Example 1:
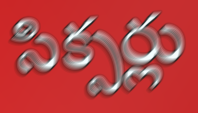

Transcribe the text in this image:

సిక్సర్లు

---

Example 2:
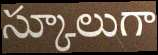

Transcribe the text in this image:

స్కూలుగా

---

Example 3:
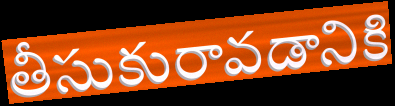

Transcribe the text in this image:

తీసుకురావడానికి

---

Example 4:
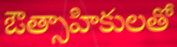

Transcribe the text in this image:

ఔత్సాహికులతో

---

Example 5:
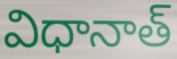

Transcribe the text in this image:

విధానాత్